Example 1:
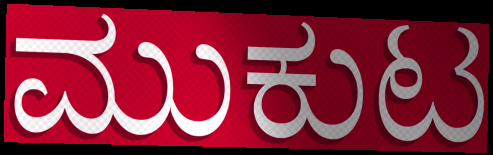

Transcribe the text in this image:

ಮುಕುಟ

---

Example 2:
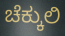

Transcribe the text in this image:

ಚೆಕ್ಕುಲಿ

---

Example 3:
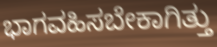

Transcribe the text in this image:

ಭಾಗವಹಿಸಬೇಕಾಗಿತ್ತು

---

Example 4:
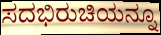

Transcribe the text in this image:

ಸದಭಿರುಚಿಯನ್ನೂ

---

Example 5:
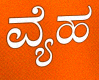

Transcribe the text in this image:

ವ್ಯೆಹ